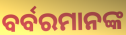
ବର୍ବରମାନଙ୍କ